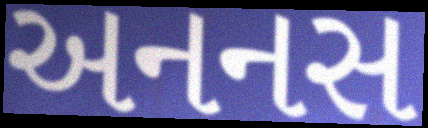
અનનસ